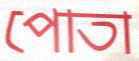
পোতা